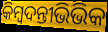
କିମ୍ବଦନ୍ତୀଭିଭିକ